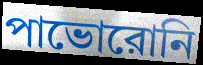
পাভোরোনি